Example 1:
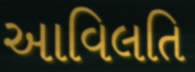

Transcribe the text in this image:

આવિલતિ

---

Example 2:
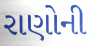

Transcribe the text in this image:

રાણોની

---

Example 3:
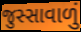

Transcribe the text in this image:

જુસ્સાવાળું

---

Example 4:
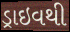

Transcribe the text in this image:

ડ્રાઇવથી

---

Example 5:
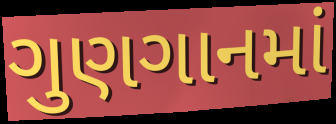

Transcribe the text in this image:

ગુણગાનમાં